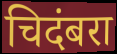
चिदंबरा